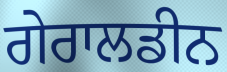
ਗੇਰਾਲਡੀਨ